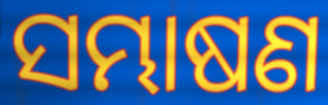
ସମ୍ଭାଷଣ